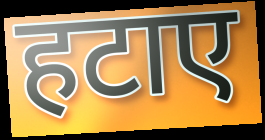
हटाए